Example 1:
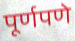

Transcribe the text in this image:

पूर्णपणे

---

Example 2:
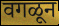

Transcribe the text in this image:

वगळून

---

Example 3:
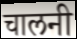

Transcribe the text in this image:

चालनी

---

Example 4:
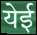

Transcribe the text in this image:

येई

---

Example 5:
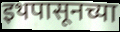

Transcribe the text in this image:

इथपासूनच्या